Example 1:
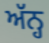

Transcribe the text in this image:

ਅੱਨ੍ਹ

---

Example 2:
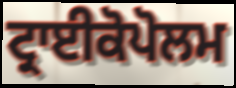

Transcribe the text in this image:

ਟ੍ਰਾਈਕੋਪੋਲਮ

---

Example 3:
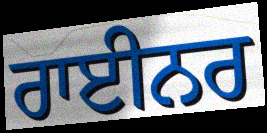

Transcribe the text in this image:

ਰਾਈਨਰ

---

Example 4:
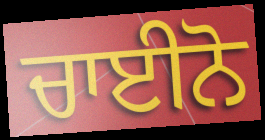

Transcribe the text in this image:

ਚਾਈਨੋ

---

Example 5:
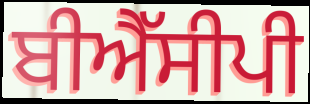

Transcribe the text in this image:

ਬੀਐੱਸੀਪੀ